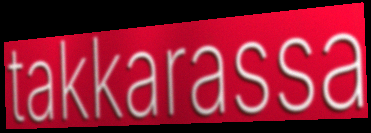
takkarassa